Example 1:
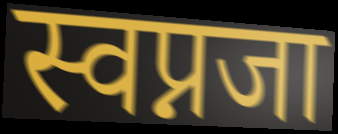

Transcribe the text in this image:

स्वप्नजा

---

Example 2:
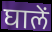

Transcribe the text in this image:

घालें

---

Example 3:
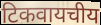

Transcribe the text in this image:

टिकवायचीय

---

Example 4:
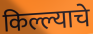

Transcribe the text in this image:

किल्ल्याचे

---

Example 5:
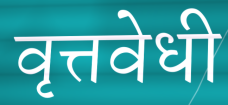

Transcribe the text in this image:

वृत्तवेधी